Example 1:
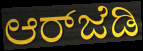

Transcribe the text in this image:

ಆರ್‌ಜೆಡಿ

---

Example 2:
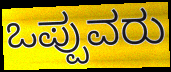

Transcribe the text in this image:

ಒಪ್ಪುವರು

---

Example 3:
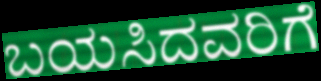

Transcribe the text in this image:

ಬಯಸಿದವರಿಗೆ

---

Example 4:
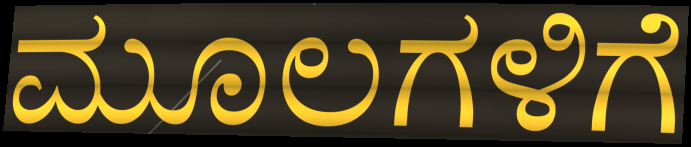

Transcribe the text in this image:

ಮೂಲಗಳಿಗೆ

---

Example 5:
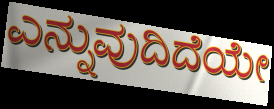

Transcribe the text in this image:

ಎನ್ನುವುದಿದೆಯೇ